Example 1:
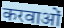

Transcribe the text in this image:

करवाओं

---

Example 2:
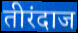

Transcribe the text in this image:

तीरंदाज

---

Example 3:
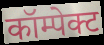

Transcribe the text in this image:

कॉम्पेक्ट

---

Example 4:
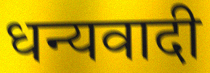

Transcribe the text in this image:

धन्यवादी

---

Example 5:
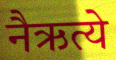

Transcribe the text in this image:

नैऋत्ये